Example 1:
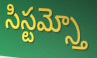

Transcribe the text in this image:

సిస్టమ్స్తో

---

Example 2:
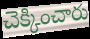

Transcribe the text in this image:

చెక్కించారు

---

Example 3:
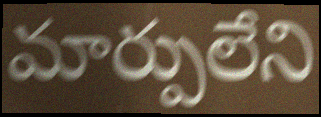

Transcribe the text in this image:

మార్పులేని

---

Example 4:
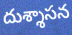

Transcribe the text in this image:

దుశ్శాసన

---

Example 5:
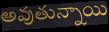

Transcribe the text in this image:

అవుతున్నాయి